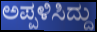
ಅಪ್ಪಳಿಸಿದ್ದು